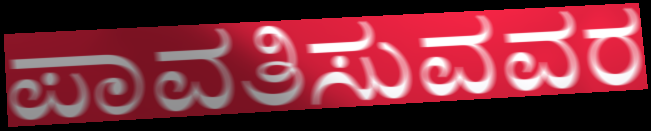
ಪಾವತಿಸುವವರ